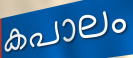
കപാലം